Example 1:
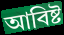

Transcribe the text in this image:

আবিষ্ট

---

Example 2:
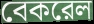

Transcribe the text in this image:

বেকরেল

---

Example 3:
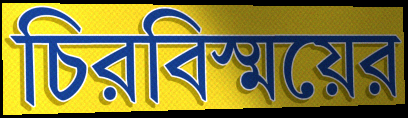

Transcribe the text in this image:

চিরবিস্ময়ের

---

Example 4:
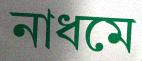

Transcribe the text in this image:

নাধমে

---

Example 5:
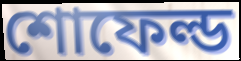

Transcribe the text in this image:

শোফেল্ড